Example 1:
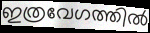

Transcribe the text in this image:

ഇത്രവേഗത്തിൽ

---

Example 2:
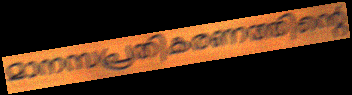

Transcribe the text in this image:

മാനസപ്രതികരണത്തിന്റെ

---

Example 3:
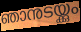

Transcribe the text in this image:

ഞാനുടയ്ക്കും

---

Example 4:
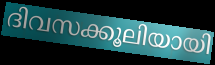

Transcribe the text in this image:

ദിവസക്കൂലിയായി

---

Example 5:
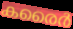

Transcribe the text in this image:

കരൈർ